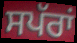
ਸਪੱਰਾਂ